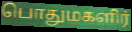
பொதுமகளிர்